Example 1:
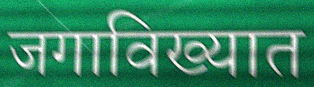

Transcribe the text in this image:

जगाविख्यात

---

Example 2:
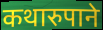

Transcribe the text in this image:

कथारुपाने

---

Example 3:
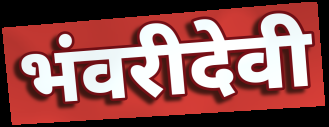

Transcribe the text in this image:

भंवरीदेवी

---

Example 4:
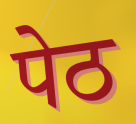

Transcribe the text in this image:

पेठ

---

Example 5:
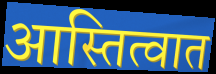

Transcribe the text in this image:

आस्तित्वात